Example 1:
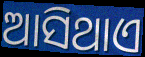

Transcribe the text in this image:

ଆସିଥାଏ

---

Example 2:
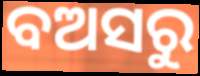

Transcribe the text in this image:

ବଅସରୁ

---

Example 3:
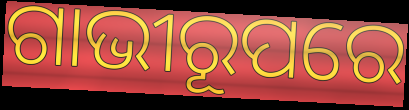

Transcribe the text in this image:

ଗାଭୀରୂପରେ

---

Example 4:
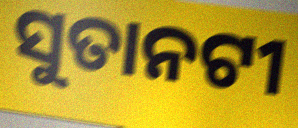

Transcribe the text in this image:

ସୁତାନଟୀ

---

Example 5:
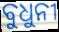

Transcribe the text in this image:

ବୁଧୁନୀ